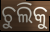
ଚୁଲିକୁ